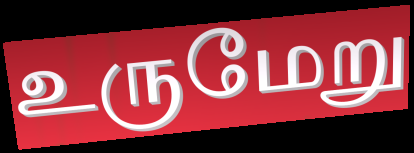
உருமேறு